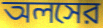
অলসের